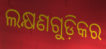
ଲକ୍ଷଣଗୁଡ଼ିକର